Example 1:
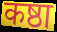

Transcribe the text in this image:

कष्ठा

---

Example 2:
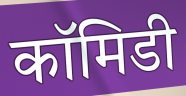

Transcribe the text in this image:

कॉमिडी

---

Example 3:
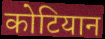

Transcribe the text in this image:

कोटियान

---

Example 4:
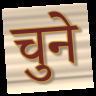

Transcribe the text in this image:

चुने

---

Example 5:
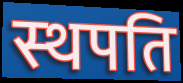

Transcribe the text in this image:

स्थपति